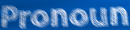
Pronoun